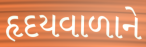
હૃદયવાળાને